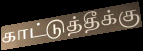
காட்டுத்தீக்கு